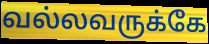
வல்லவருக்கே